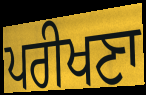
ਪਰੀਖਣਾ